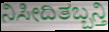
ನಿಸೀದಿತಬ್ಬನ್ತಿ